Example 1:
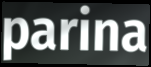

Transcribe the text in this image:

parina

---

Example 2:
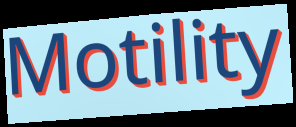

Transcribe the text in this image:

Motility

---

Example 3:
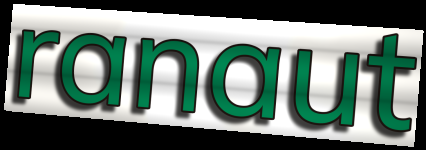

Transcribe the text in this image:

ranaut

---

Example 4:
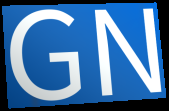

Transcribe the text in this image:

GN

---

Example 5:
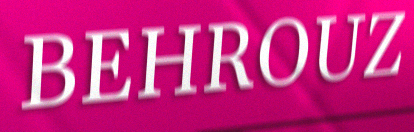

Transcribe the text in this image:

BEHROUZ